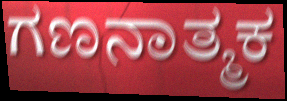
ಗಣನಾತ್ಮಕ